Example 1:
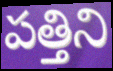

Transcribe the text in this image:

పత్తిని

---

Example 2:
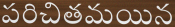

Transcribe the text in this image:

పరిచితమయిన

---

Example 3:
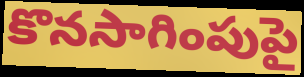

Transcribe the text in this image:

కొనసాగింపుపై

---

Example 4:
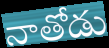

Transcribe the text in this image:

నాతోడు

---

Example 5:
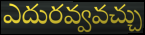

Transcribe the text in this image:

ఎదురవ్వవచ్చు